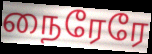
நைரேரே